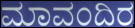
ಮಾವಂದಿರ